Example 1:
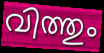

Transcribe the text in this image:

വിത്തും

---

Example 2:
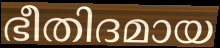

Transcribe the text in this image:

ഭീതിദമായ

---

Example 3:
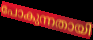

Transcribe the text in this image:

പോകുന്നതായി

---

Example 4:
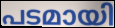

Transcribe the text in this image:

പടമായി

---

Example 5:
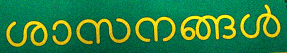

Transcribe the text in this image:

ശാസനങ്ങൾ